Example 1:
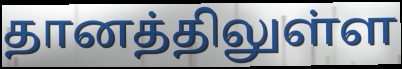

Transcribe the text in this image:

தானத்திலுள்ள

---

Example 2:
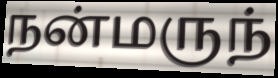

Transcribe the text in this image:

நன்மருந்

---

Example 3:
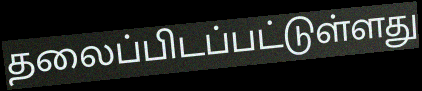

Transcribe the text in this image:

தலைப்பிடப்பட்டுள்ளது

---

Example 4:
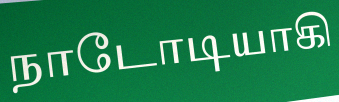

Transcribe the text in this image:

நாடோடியாகி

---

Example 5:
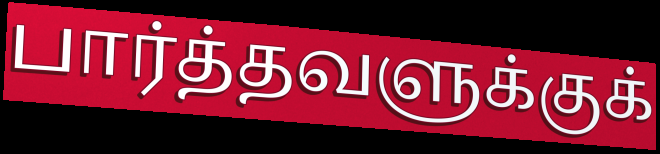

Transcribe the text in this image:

பார்த்தவளுக்குக்